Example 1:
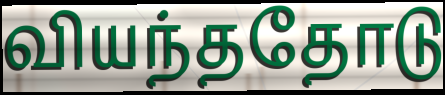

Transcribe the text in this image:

வியந்ததோடு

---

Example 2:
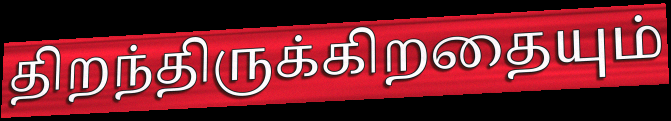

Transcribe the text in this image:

திறந்திருக்கிறதையும்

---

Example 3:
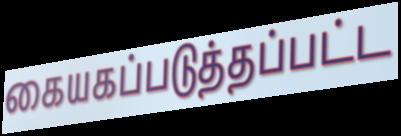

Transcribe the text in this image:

கையகப்படுத்தப்பட்ட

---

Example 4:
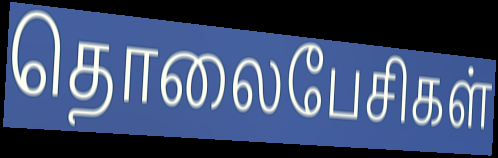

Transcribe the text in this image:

தொலைபேசிகள்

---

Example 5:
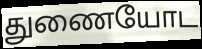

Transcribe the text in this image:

துணையோட